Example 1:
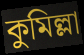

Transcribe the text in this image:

কুমিল্লা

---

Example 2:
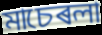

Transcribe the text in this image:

মাচেৰলা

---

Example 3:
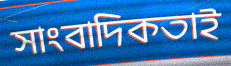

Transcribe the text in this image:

সাংবাদিকতাই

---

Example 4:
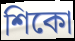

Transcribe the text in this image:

শিকো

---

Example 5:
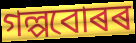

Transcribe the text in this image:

গল্পবোৰৰ